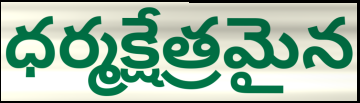
ధర్మక్షేత్రమైన